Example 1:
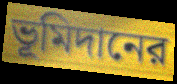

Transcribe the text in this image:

ভূমিদানের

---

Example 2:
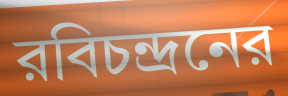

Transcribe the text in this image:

রবিচন্দ্রনের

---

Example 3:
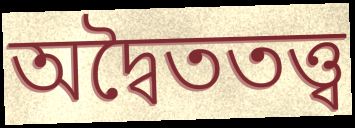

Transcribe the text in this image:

অদ্বৈততত্ত্ব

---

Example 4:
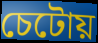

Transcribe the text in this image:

চেটোয়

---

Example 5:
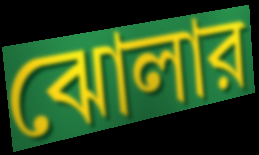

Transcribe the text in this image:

ঝোলার